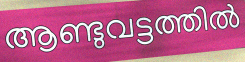
ആണ്ടുവട്ടത്തിൽ